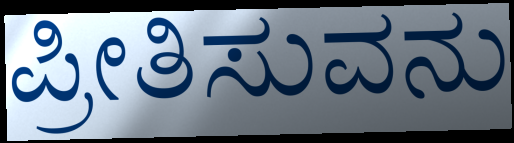
ಪ್ರೀತಿಸುವನು